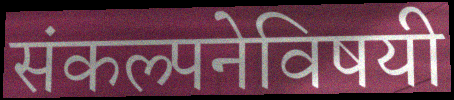
संकल्पनेविषयी